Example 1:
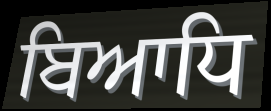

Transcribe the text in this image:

ਬਿਆਧਿ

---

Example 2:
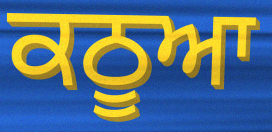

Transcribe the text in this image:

ਕਠੂਆ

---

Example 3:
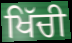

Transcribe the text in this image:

ਖਿੱਚੀ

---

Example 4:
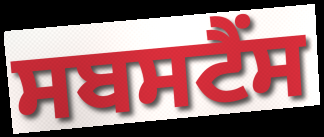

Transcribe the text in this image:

ਸਬਸਟੈਂਸ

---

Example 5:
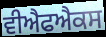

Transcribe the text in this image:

ਵੀਐਫਐਕਸ